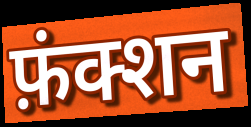
फ़ंक्शन